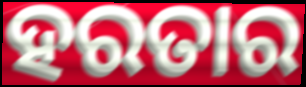
ହରତାର